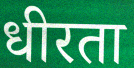
धीरता